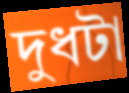
দুধটা